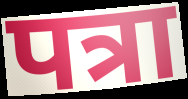
पत्रा